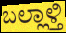
ಬಲ್ಲಾಳ್ತಿ